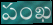
పంఖ